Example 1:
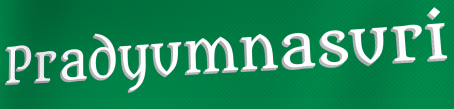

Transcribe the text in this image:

Pradyumnasuri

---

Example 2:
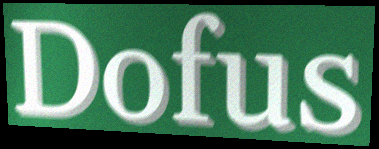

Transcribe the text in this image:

Dofus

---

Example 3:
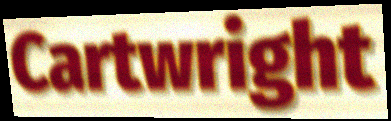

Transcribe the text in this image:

Cartwright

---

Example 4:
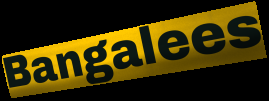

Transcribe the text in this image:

Bangalees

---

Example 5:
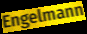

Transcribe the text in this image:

Engelmann